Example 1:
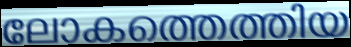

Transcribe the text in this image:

ലോകത്തെത്തിയ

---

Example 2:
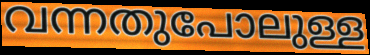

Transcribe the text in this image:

വന്നതുപോലുള്ള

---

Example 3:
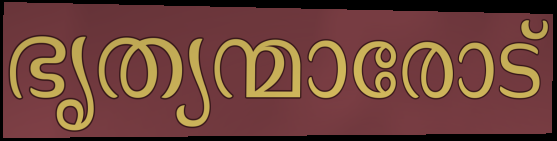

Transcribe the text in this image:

ഭൃത്യന്മാരോട്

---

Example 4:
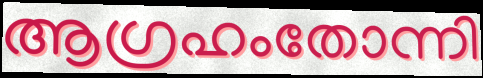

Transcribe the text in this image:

ആഗ്രഹംതോന്നി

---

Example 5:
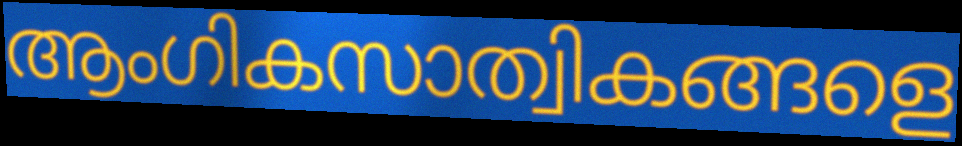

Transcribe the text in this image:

ആംഗികസാത്വികങ്ങളെ